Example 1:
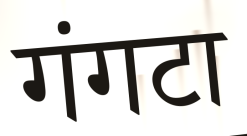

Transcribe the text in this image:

गंगटा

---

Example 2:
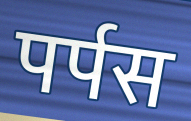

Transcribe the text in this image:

पर्पस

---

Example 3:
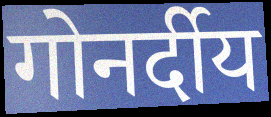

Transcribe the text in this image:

गोनर्दीय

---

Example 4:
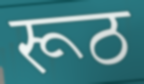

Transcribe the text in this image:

रूठ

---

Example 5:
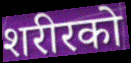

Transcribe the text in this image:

शरीरको